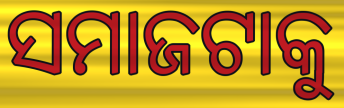
ସମାଜଟାକୁ